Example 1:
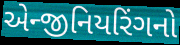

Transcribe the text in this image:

એન્જીનિયરિંગનો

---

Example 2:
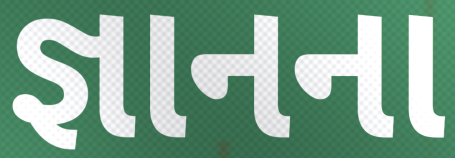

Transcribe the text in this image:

જ્ઞાનના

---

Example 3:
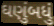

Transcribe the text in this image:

ઘણુંબધું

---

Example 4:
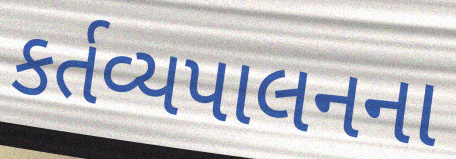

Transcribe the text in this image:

કર્તવ્યપાલનના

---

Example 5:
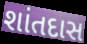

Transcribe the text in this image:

શાંતદાસ